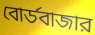
বোর্ডবাজার